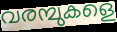
വരമ്പുകളെ